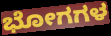
ಭೋಗಗಳ